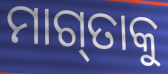
ମାଗ୍‌ତାକୁ